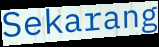
Sekarang